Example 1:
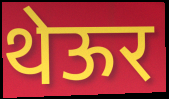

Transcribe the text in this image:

थेऊर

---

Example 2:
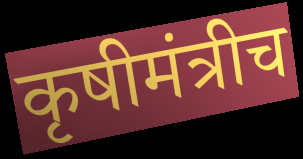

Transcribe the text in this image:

कृषीमंत्रीच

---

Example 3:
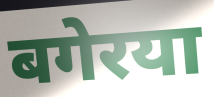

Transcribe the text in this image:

बगेरया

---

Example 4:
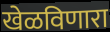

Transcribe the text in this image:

खेळविणारा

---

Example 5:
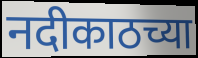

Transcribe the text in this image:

नदीकाठच्या